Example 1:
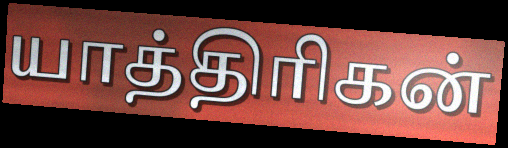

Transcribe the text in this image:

யாத்திரிகன்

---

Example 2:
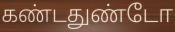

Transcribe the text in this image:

கண்டதுண்டோ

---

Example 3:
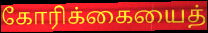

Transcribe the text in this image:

கோரிக்கையைத்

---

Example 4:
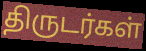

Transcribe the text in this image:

திருடர்கள்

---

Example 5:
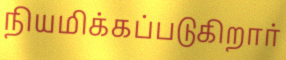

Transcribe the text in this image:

நியமிக்கப்படுகிறார்